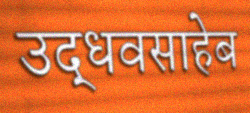
उद्धवसाहेब